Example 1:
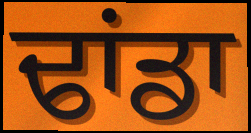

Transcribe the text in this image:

ਢਾਂਡਾ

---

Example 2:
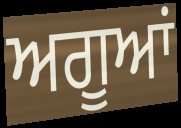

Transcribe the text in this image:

ਅਗੂਆਂ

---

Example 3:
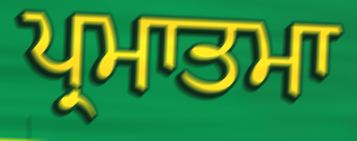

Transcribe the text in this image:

ਪ੍ਰਮਾਤਮਾ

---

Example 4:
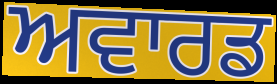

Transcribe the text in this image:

ਅਵਾਰਡ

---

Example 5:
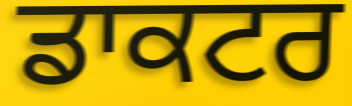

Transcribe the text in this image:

ਡਾਕਟਰ